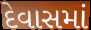
દેવાસમાં